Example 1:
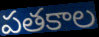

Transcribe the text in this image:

పతకాల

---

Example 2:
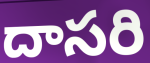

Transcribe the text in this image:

దాసరి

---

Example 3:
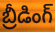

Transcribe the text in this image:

బ్రీడింగ్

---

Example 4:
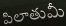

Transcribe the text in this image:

పిలాతుమీ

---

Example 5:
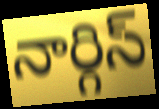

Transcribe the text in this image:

నార్గిస్